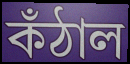
কঁঠাল